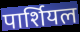
पार्शियल